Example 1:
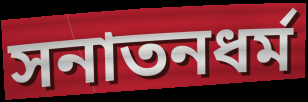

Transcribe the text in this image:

সনাতনধর্ম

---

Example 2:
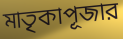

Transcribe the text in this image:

মাতৃকাপূজার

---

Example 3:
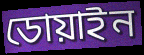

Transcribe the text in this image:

ডোয়াইন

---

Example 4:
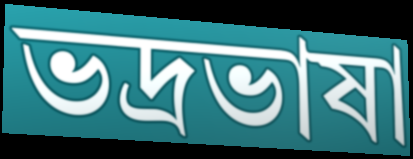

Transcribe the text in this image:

ভদ্রভাষা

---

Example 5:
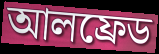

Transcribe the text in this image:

আলফ্রেড